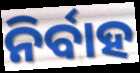
ନିର୍ବାହ